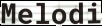
Melodi